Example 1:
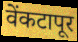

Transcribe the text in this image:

वेंकटापूर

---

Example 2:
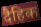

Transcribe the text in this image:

दैहिक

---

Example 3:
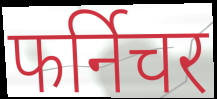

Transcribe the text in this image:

फर्निचर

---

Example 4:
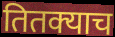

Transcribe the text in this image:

तितक्‍याच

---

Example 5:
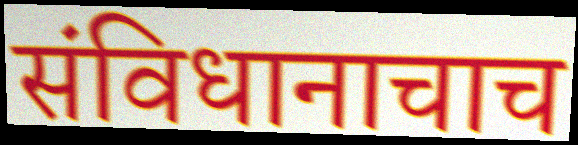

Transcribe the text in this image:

संविधानाचाच